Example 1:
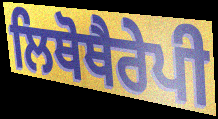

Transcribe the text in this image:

ਲਿਥੋਥੈਰੇਪੀ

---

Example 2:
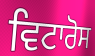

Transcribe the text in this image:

ਵਿਟਾਰੋਸ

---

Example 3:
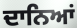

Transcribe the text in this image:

ਦਾਨਿਆਂ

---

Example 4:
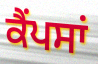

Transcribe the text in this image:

ਕੈਂਪਸਾਂ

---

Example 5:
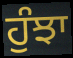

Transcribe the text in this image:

ਹੁੰਝਾ